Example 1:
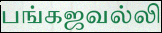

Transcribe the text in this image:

பங்கஜவல்லி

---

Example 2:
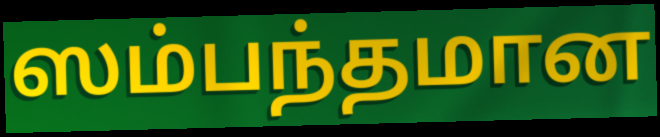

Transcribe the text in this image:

ஸம்பந்தமான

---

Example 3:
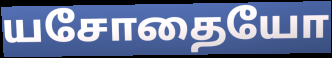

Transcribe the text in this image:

யசோதையோ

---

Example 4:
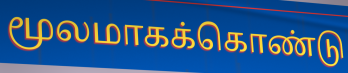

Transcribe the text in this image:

மூலமாகக்கொண்டு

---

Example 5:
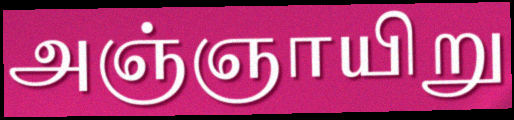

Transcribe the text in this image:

அஞ்ஞாயிறு